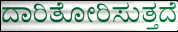
ದಾರಿತೋರಿಸುತ್ತದೆ